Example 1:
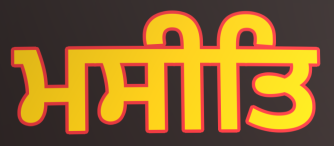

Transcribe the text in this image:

ਮਸੀਤਿ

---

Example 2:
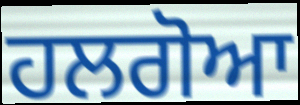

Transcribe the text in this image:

ਹਲਗੋਆ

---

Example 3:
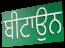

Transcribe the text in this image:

ਬੀਟਾਉਨ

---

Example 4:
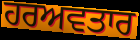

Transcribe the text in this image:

ਹਰਅਵਤਾਰ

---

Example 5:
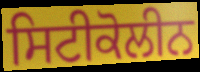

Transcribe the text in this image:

ਸਿਟੀਕੋਲੀਨ